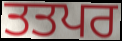
ਤਤਪਰ